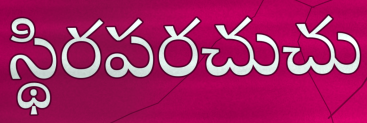
స్థిరపరచుచు